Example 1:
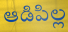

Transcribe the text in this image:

ఆడిపిల్ల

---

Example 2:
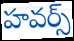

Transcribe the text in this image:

హవర్స్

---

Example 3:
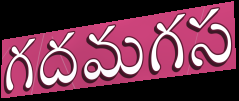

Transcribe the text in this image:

గదమగస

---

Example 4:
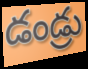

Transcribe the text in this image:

డండ్రు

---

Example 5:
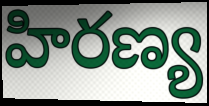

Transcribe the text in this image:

హిరణ్య